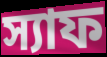
স্যাফ